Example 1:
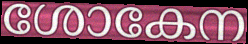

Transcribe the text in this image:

ശോകേന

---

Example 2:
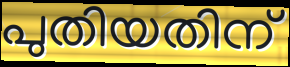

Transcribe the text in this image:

പുതിയതിന്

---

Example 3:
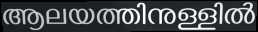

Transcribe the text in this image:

ആലയത്തിനുള്ളിൽ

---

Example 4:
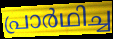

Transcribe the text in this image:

പ്രാർഥിച്ച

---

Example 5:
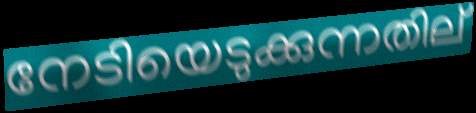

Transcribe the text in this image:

നേടിയെടുക്കുന്നതില്